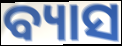
ବ୍ୟାସ